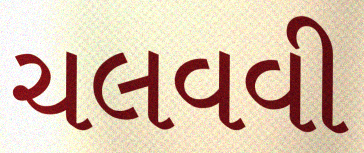
ચલવવી